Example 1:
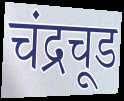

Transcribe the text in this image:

चंद्रचूड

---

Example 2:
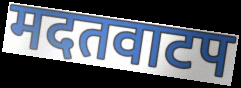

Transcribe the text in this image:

मदतवाटप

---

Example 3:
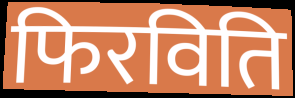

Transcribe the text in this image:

फिरविति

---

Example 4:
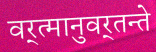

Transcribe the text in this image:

वर्त्मानुवर्तन्ते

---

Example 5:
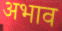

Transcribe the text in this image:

अभाव